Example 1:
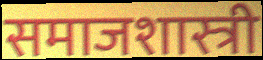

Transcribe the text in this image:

समाजशास्त्री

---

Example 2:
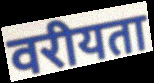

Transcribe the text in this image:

वरीयता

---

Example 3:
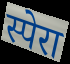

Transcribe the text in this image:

स्पेरा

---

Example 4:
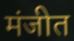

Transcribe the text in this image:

मंजीत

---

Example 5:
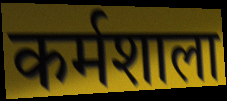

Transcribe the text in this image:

कर्मशाला